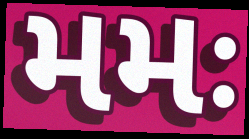
મમઃ